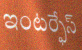
ఇంటర్ఫేస్